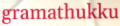
gramathukku